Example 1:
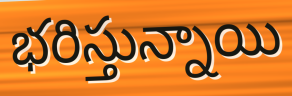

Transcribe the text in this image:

భరిస్తున్నాయి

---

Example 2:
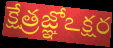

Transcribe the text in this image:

క్షేత్రజ్ఞోఽక్షర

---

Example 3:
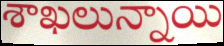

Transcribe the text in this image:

శాఖలున్నాయి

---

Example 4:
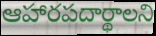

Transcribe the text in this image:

ఆహారపదార్థాలని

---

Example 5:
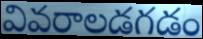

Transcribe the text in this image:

వివరాలడగడం